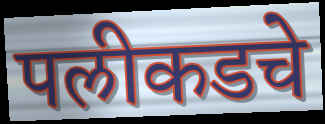
पलीकडचे